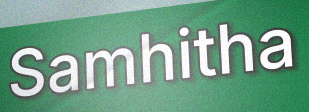
Samhitha